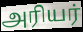
அரியர்